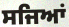
ਸਜਿਆਂ